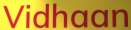
Vidhaan